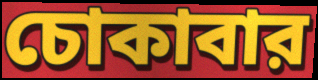
চোকাবার